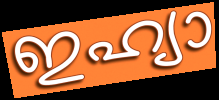
ഇഹ്യാ